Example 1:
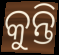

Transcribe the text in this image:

କୁନ୍ତି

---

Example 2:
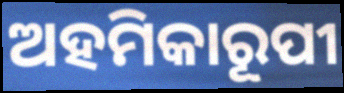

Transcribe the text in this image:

ଅହମିକାରୂପୀ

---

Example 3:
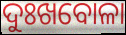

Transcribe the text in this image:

ଦୁଃଖବୋଳା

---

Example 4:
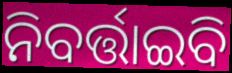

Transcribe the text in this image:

ନିବର୍ତ୍ତାଇବି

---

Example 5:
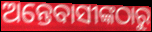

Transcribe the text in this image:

ଅନ୍ତେବାସୀଙ୍କଠାରୁ